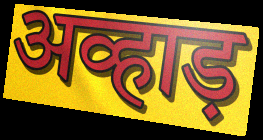
अव्हाड़